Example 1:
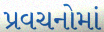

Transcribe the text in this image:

પ્રવચનોમાં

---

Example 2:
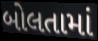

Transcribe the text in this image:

બોલતામાં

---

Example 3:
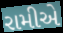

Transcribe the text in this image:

રામીએ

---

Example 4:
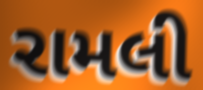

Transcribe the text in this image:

રામલી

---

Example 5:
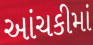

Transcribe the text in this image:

આંચકીમાં